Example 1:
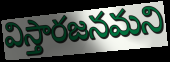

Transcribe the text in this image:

విస్తారజనమని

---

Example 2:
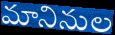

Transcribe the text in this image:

మానినుల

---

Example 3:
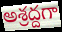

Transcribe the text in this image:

అశ్రద్దగా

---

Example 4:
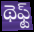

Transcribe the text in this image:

థెఫ్ట్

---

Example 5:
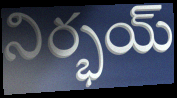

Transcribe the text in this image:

నిర్భయ్